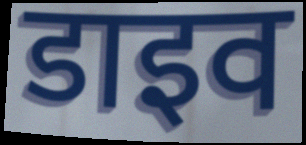
डाइव